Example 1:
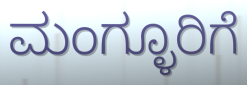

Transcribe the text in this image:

ಮಂಗ್ಳೂರಿಗೆ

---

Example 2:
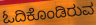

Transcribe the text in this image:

ಓದಿಕೊಂಡಿರುವ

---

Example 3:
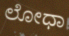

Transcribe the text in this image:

ಲೋಧಾ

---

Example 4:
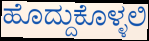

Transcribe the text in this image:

ಹೊದ್ದುಕೊಳ್ಳಲಿ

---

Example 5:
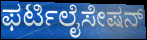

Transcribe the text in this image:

ಫರ್ಟಿಲೈಸೇಷನ್